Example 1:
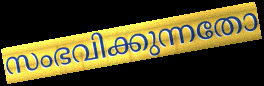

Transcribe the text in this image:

സംഭവിക്കുന്നതോ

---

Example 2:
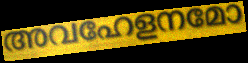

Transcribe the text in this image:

അവഹേളനമോ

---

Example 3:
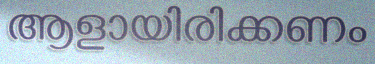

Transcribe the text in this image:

ആളായിരിക്കണം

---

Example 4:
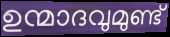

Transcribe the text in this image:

ഉന്മാദവുമുണ്ട്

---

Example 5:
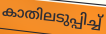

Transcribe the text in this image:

കാതിലടുപ്പിച്ച്